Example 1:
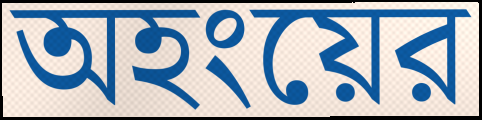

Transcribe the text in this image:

অহংয়ের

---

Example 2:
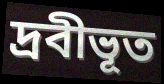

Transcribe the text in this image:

দ্রবীভূত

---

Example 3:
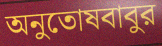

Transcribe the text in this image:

অনুতোষবাবুর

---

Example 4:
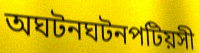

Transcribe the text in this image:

অঘটনঘটনপটিয়সী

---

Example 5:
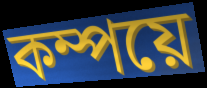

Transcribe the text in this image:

কম্পয়ে